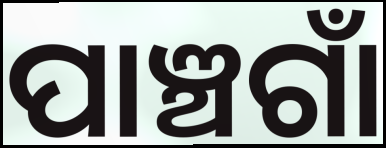
ପାଞ୍ଚଗାଁ